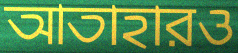
আতাহারও